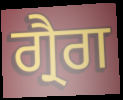
ਗ੍ਰੈਗ